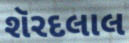
શૅરદલાલ